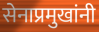
सेनाप्रमुखांनी